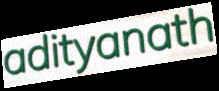
adityanath